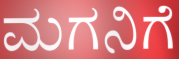
ಮಗನಿಗೆ